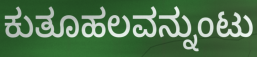
ಕುತೂಹಲವನ್ನುಂಟು